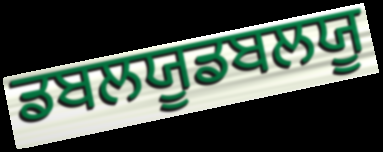
ਡਬਲਯੂਡਬਲਯੂ